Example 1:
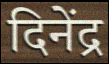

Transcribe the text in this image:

दिनेंद्र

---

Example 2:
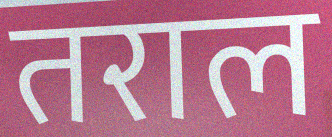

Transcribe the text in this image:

तराल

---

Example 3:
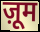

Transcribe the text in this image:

ज़ूम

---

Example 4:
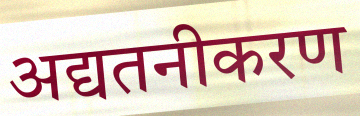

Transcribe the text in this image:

अद्यतनीकरण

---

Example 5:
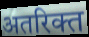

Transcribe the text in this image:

अतरिक्त